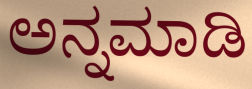
ಅನ್ನಮಾಡಿ